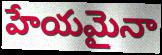
హేయమైనా